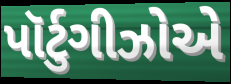
પૉર્ટુગીઝોએ